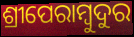
ଶ୍ରୀପେରାମ୍ବୁଦୁର